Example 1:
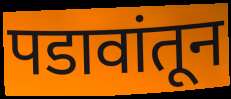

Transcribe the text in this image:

पडावांतून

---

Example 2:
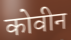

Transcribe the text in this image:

कोवीन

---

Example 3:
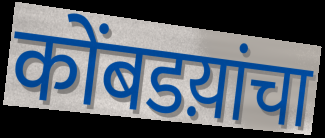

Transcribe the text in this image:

कोंबडय़ांचा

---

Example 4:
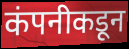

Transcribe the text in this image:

कंपनीकडून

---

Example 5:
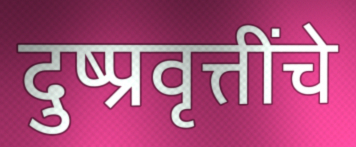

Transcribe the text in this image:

दुष्प्रवृत्तींचे